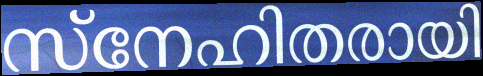
സ്നേഹിതരായി